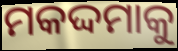
ମକଦ୍ଦମାକୁ